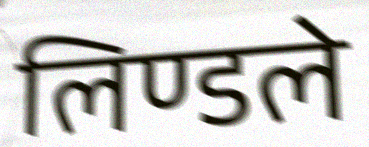
लिण्डले